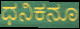
ಧನಿಕನೂ